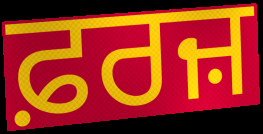
ਫ਼ਰਜ਼